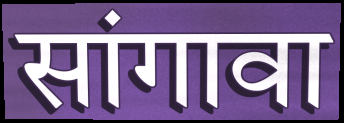
सांगावा